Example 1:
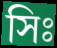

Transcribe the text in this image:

সিঃ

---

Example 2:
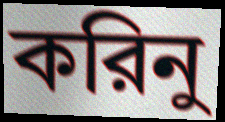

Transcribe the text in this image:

করিনু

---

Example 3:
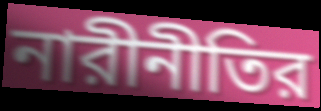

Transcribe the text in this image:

নারীনীতির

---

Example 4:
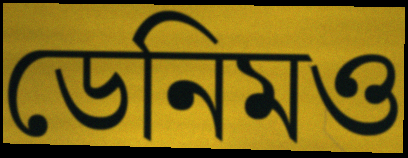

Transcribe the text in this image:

ডেনিমও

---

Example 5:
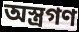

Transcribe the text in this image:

অস্ত্রগণ